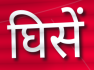
घिसें